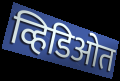
व्हिडिओत